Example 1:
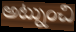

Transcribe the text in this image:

అట్నుంచి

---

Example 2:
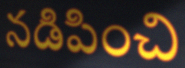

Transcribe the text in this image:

నడిపించి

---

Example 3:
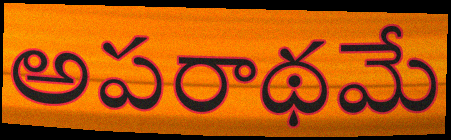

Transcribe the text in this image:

అపరాథమే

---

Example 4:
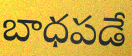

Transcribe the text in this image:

బాధపడే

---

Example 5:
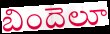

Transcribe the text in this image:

బిందెలూ